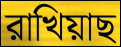
রাখিয়াছ